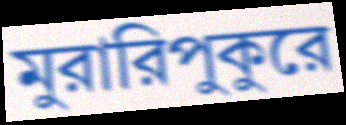
মুরারিপুকুরে